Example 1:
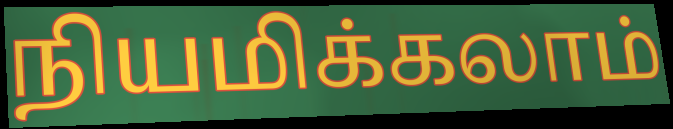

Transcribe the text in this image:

நியமிக்கலாம்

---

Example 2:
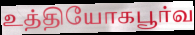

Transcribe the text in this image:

உத்தியோகபூர்வ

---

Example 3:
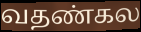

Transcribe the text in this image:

வதண்கல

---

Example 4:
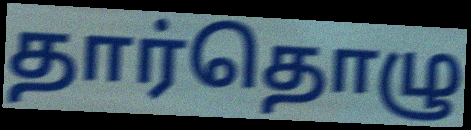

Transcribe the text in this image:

தார்தொழு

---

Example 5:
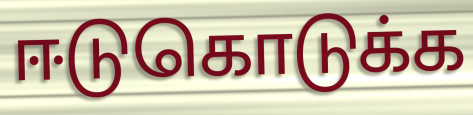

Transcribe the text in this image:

ஈடுகொடுக்க